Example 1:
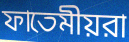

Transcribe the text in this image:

ফাতেমীয়রা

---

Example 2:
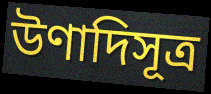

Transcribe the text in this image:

উণাদিসূত্র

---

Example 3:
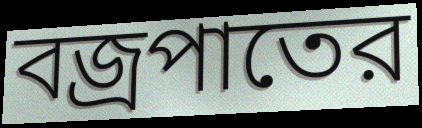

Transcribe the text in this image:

বজ্রপাতের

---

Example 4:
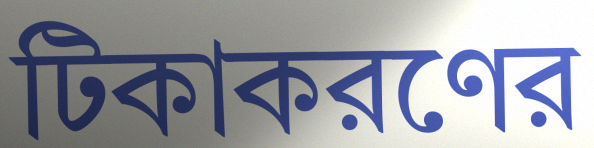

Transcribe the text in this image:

টিকাকরণের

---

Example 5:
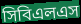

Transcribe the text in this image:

সিবিএলএস